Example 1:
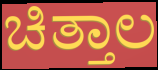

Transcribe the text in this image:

ಚಿತ್ತಾಲ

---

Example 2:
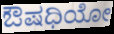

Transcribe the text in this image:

ಔಷಧಿಯೋ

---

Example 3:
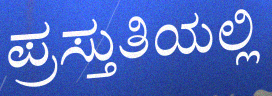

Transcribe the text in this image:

ಪ್ರಸ್ತುತಿಯಲ್ಲಿ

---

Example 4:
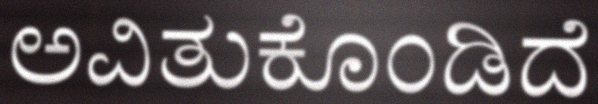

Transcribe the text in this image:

ಅವಿತುಕೊಂಡಿದೆ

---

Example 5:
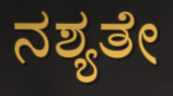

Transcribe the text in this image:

ನಶ್ಯತೇ